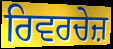
ਰਿਵਰਚੇਜ਼